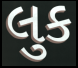
લુક